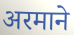
अरमाने